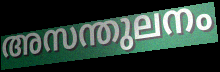
അസന്തുലനം